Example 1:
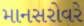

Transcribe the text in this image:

માનસરોવરે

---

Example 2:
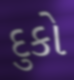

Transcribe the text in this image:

દુકો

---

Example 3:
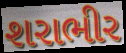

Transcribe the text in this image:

શરાભીર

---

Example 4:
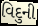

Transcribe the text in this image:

વિદુની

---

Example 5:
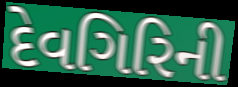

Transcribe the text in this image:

દેવગિરિની